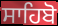
ਸਾਹਿਬੋ